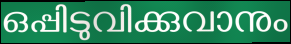
ഒപ്പിടുവിക്കുവാനും